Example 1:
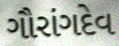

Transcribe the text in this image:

ગૌરાંગદેવ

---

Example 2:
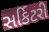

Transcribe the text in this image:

સર્કિટરી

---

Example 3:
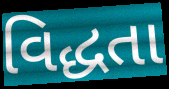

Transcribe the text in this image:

વિદ્ધતા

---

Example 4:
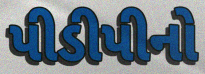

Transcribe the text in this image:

પીડીપીનો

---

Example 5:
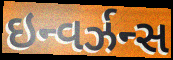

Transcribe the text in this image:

ઇન્વર્ઝન્સ